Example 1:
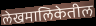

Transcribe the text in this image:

लेखमालिकेतील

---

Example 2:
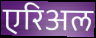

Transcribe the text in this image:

एरिअल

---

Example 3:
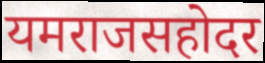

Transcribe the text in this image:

यमराजसहोदर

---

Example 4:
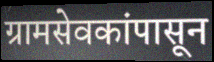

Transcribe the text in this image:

ग्रामसेवकांपासून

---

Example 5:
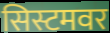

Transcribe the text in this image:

सिस्टमवर